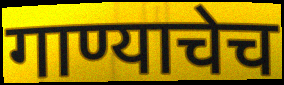
गाण्याचेच